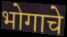
भोगाचे